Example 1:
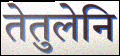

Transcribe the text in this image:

तेतुलेनि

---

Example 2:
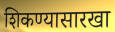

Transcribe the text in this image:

शिकण्यासारखा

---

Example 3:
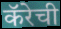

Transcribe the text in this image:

कॅरेची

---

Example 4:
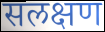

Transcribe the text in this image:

सलक्षण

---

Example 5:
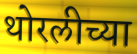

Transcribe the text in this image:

थोरलीच्या